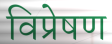
विप्रेषण